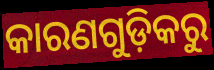
କାରଣଗୁଡ଼ିକରୁ